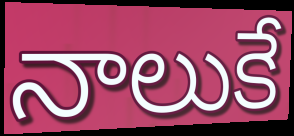
నాలుకే